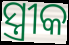
ସ୍ତ୍ରୀକ